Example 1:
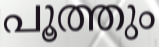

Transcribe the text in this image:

പൂത്തും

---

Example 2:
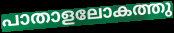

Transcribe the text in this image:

പാതാളലോകത്തു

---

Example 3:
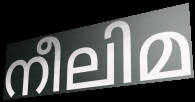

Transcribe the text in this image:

നീലിമ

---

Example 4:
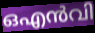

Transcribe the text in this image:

ഒഎൻവി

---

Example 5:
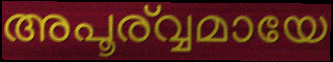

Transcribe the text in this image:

അപൂര്വ്വമായേ